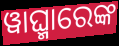
ୱାଘ୍ମାରେଙ୍କ